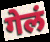
गेलं